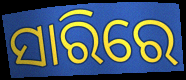
ସାରିରେ